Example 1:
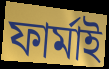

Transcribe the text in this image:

ফাৰ্মাই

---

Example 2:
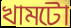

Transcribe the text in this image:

খামটো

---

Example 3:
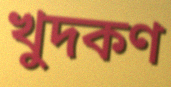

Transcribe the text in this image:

খুদকণ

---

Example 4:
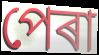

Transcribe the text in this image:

পেৰা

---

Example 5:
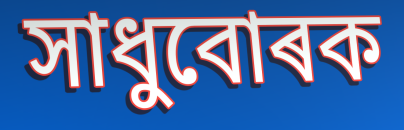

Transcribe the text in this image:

সাধুবোৰক